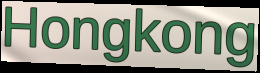
Hongkong